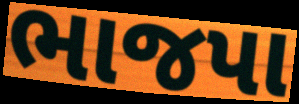
ભાજપા